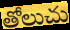
తోలుచు